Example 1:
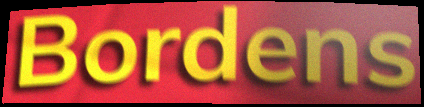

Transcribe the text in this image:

Bordens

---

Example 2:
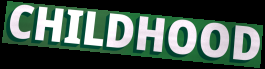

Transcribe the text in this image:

CHILDHOOD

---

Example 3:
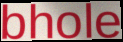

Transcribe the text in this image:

bhole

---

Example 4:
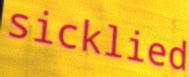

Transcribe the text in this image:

sicklied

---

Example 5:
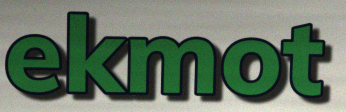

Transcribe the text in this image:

ekmot